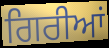
ਗਿਰੀਆਂ